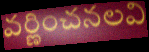
వర్ణించనలవి